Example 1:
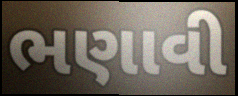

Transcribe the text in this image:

ભણાવી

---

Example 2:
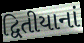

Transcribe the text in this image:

દ્વિતીયાનાં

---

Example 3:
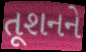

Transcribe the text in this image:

તૂશનને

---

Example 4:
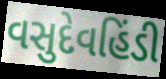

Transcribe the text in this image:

વસુદેવહિંડી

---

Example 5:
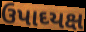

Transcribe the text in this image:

ઉપાઘ્યક્ષ